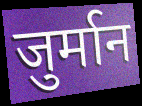
जुर्मान